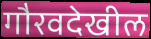
गौरवदेखील